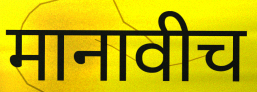
मानावीच